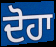
ਦੋਹਾ